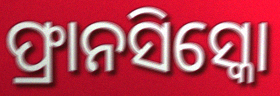
ଫ୍ରାନସିସ୍କୋ